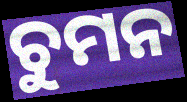
ଚୁମନ